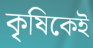
কৃষিকেই